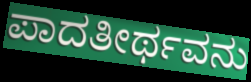
ಪಾದತೀರ್ಥವನು